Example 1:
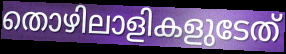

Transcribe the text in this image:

തൊഴിലാളികളുടേത്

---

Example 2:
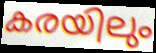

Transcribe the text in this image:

കരയിലും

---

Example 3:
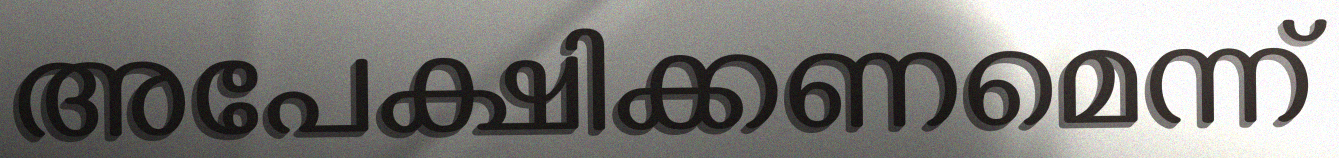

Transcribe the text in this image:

അപേക്ഷിക്കണമെന്ന്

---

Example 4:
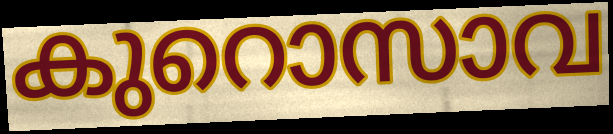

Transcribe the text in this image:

കുറൊസാവ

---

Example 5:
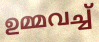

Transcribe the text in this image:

ഉമ്മവച്ച്